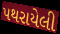
પથરાયેલી